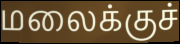
மலைக்குச்